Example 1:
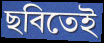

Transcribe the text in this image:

ছবিতেই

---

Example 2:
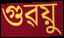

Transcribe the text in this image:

গুৱয়ু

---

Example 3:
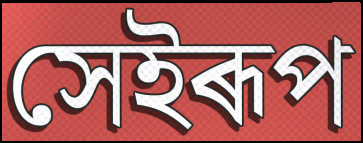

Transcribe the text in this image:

সেইৰূপ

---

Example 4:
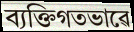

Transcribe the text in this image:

ব্যক্তিগতভাৱে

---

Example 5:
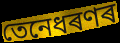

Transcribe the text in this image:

তেনেধৰণৰ